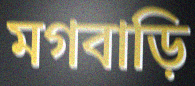
মগবাড়ি